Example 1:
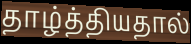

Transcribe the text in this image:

தாழ்த்தியதால்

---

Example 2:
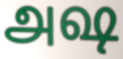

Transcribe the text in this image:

அஷ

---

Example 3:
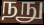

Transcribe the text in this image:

நநு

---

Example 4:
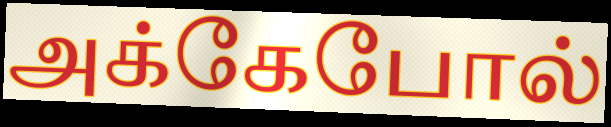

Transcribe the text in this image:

அக்கேபோல்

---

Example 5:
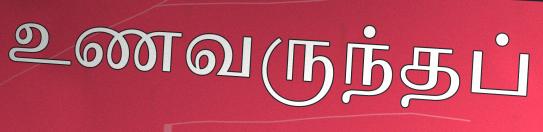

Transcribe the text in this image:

உணவருந்தப்